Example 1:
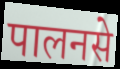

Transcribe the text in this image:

पालनसे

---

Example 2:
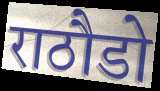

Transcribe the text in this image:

राठौडो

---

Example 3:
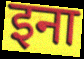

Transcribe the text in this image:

इना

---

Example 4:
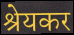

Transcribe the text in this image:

श्रेयकर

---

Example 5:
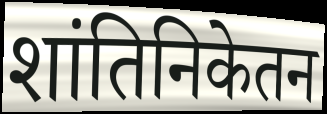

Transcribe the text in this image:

शांतिनिकेतन